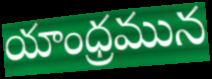
యాంధ్రమున